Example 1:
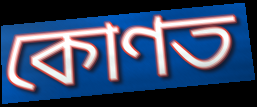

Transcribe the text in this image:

কোণত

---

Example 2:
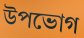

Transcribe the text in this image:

উপভোগ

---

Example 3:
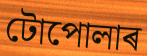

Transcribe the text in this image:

টোপোলাৰ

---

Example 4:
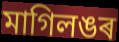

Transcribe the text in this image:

মাগিলঙৰ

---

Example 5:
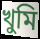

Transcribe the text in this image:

খুমি